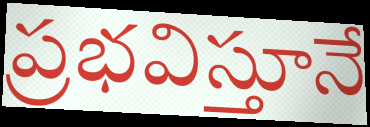
ప్రభవిస్తూనే